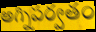
అగ్నిపర్వతం